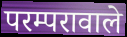
परम्परावाले